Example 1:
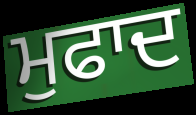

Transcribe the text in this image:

ਮੁਫਾਦ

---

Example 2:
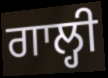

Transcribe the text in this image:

ਗਾਲ੍ਹ੍ਹੀ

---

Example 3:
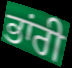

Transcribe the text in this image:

ਭਾਂਰੀ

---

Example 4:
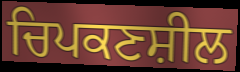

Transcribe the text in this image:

ਚਿਪਕਣਸ਼ੀਲ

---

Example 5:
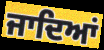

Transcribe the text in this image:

ਜਾਦਿਆਂ